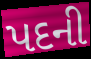
પદની